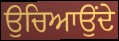
ਉਚਿਆਉਂਦੇ